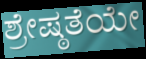
ಶ್ರೇಷ್ಠತೆಯೇ